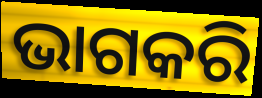
ଭାଗକରି